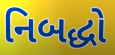
નિબદ્ધો